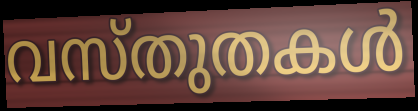
വസ്തുതകൾ